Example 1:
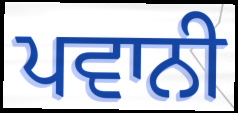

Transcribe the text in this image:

ਪਵਾਨੀ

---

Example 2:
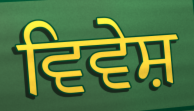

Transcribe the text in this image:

ਵਿਵੇਸ਼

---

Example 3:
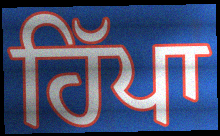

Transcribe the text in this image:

ਹਿੱਪਾ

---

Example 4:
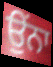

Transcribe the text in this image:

ਉੰਨਾ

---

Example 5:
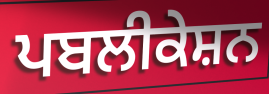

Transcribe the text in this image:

ਪਬਲੀਕੇਸ਼ਨ